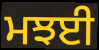
ਮਝਈ